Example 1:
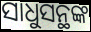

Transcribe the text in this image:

ସାଧୁସନ୍ଥଙ୍କ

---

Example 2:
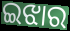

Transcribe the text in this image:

ଇଝାର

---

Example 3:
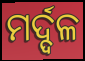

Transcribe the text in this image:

ମର୍ଦ୍ଦଳ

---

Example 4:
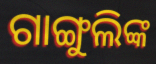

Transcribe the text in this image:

ଗାଙ୍ଗୁଲିଙ୍କ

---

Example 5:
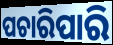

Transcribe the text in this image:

ପଚାରିପାରି